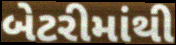
બેટરીમાંથી